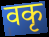
वकृ